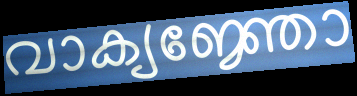
വാക്യജ്ഞോ